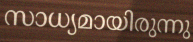
സാധ്യമായിരുന്നു